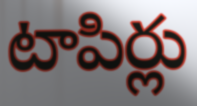
టాపిర్లు